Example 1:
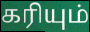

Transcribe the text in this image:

கரியும்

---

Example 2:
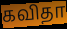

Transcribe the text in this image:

கவிதா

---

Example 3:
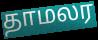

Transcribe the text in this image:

தாமலர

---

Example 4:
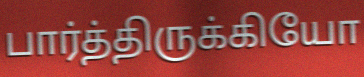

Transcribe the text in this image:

பார்த்திருக்கியோ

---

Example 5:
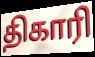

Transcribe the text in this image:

திகாரி